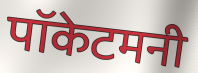
पॉकेटमनी